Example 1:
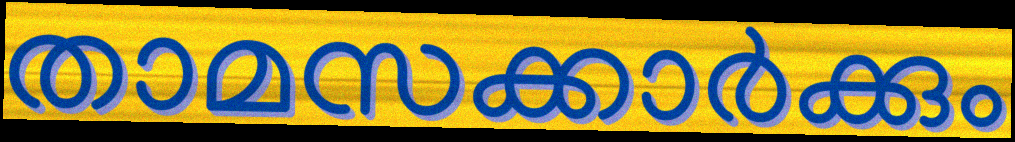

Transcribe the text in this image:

താമസക്കാർക്കും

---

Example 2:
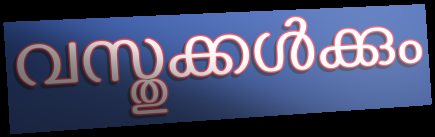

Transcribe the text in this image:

വസ്തുക്കൾക്കും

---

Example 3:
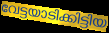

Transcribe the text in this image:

വേട്ടയാടിക്കിട്ടിയ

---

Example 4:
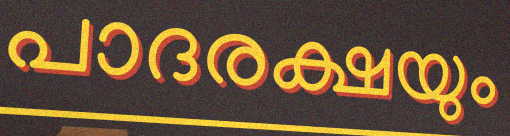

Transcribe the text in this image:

പാദരക്ഷയും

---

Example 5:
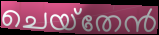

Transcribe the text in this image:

ചെയ്‌തേൻ